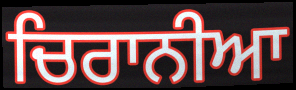
ਚਿਰਾਨੀਆ